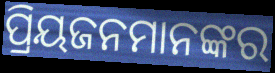
ପ୍ରିୟଜନମାନଙ୍କର